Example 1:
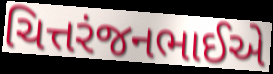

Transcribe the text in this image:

ચિત્તરંજનભાઈએ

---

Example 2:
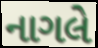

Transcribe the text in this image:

નાગલે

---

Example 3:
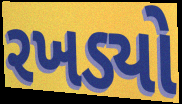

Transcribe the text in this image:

રખડ્યો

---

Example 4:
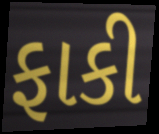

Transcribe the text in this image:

ફાકી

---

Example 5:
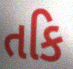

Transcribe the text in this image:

તકિ